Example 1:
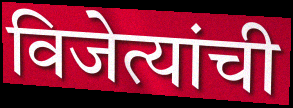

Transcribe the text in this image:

विजेत्यांची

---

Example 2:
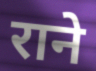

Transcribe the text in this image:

राने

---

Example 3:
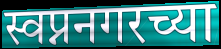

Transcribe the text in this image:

स्वप्ननगरच्या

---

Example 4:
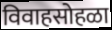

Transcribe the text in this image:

विवाहसोहळा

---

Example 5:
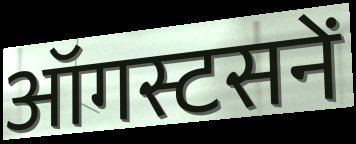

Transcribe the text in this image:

ऑगस्टसनें